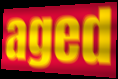
aged